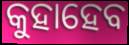
କୁହାହେବ